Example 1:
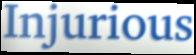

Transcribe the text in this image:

Injurious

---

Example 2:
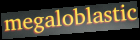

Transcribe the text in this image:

megaloblastic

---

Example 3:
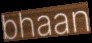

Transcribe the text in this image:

bhaan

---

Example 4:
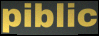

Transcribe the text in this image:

piblic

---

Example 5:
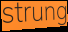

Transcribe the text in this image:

strung